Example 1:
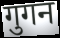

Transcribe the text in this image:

गुगन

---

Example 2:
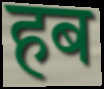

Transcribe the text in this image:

हब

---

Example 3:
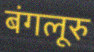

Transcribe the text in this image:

बंगलूरु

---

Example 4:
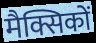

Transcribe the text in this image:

मैक्सिकों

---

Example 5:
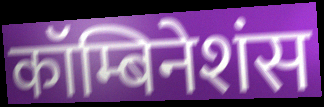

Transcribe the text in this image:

कॉम्बिनेशंस